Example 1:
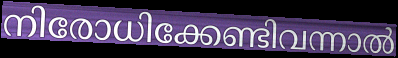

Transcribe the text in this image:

നിരോധിക്കേണ്ടിവന്നാൽ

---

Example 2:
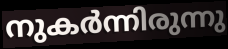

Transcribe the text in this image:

നുകർന്നിരുന്നു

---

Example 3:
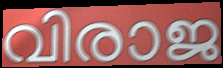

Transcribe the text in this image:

വിരാജ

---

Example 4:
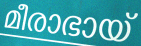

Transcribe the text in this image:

മീരാഭായ്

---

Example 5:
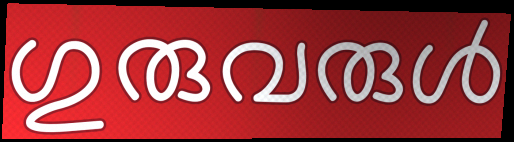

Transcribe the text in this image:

ഗുരുവരുൾ